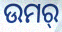
ଉମର୍